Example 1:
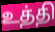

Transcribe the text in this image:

உத்தி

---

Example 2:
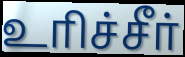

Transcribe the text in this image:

உரிச்சீர்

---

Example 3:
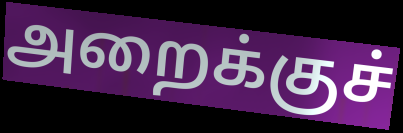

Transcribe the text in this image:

அறைக்குச்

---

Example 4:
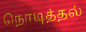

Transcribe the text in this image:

நொடித்தல்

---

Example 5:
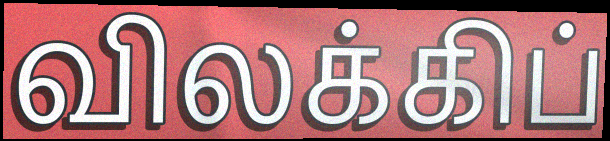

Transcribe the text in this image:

விலக்கிப்